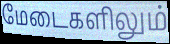
மேடைகளிலும்